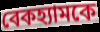
বেকহ্যামকে